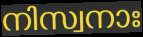
നിസ്വനാഃ